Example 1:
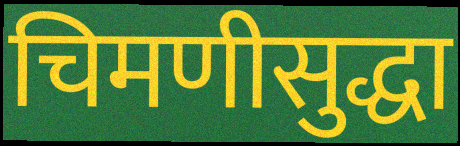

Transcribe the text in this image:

चिमणीसुद्धा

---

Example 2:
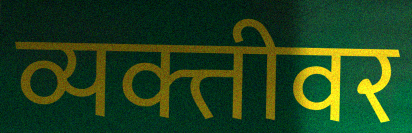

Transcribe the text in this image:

व्यक्तीवर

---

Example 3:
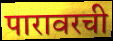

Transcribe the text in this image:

पारावरची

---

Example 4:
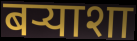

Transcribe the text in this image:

बऱ्याशा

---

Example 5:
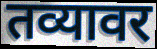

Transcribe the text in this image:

तव्यावर